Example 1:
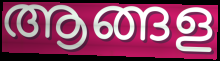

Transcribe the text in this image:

ആങ്ങള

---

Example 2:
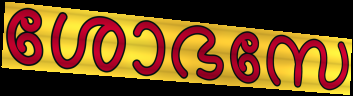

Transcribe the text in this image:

ശോഭസേ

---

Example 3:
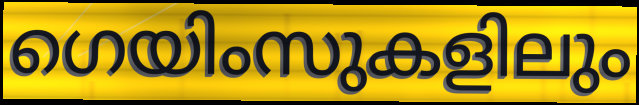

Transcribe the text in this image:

ഗെയിംസുകളിലും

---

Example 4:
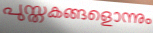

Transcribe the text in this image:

പുസ്തകങ്ങളൊന്നും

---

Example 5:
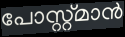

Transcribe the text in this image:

പോസ്റ്റ്മാൻ